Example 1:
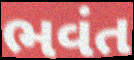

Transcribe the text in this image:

ભવંત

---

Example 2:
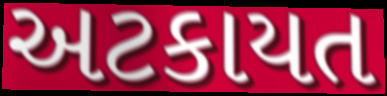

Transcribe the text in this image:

અટકાયત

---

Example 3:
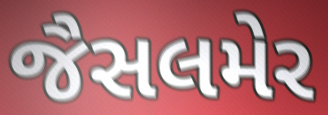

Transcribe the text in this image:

જૈસલમેર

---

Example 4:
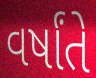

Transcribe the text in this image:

વર્ષાંતે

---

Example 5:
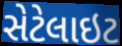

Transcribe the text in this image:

સેટેલાઇટ